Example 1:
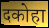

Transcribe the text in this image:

दकोहा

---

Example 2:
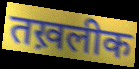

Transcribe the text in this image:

तख़लीक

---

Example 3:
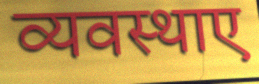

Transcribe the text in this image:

व्यवस्थाए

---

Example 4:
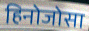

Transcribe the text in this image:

हिनोजोसा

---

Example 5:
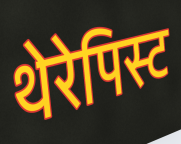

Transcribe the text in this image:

थेरेपिस्ट